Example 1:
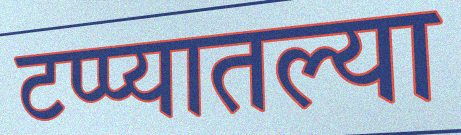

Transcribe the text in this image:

टप्प्यातल्या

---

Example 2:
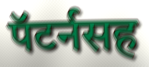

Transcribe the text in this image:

पॅटर्नसह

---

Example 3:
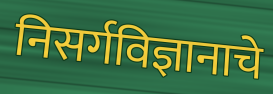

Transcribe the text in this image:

निसर्गविज्ञानाचे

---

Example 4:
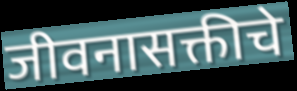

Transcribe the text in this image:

जीवनासक्तीचे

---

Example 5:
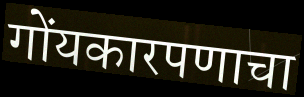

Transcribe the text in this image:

गोंयकारपणाचा